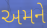
અમને